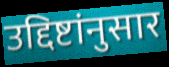
उद्दिष्टांनुसार